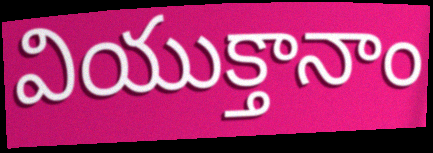
వియుక్తానాం